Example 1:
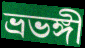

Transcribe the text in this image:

ভ্রভঙ্গী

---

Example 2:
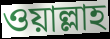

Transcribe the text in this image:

ওয়াল্লাহ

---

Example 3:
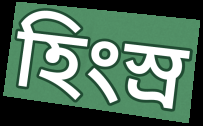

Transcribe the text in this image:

হিংস্র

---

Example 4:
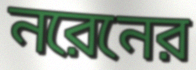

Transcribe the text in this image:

নরেনের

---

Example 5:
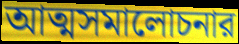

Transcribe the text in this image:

আত্মসমালোচনার